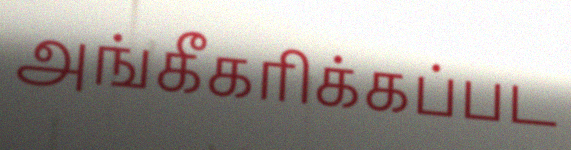
அங்கீகரிக்கப்பட